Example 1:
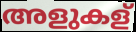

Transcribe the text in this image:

അളുകള്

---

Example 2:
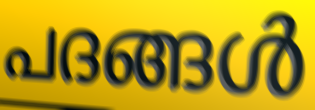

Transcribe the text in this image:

പദങ്ങൾ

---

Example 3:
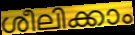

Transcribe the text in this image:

ശീലിക്കാം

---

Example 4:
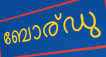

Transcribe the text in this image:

ബോര്ഡു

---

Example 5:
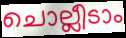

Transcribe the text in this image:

ചൊല്ലീടാം